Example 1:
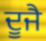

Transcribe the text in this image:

ਦੂਜੈ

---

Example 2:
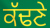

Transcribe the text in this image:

ਕੱਢਣੇ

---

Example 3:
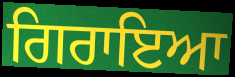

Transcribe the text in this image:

ਗਿਰਾਇਆ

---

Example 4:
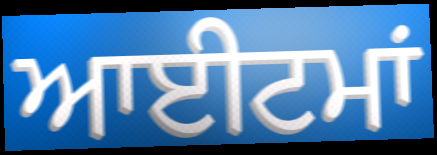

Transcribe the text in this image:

ਆਈਟਮਾਂ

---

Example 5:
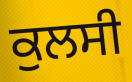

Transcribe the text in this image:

ਕੁਲਸੀ